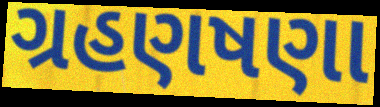
ગ્રહણષણા